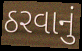
ઠરવાનું